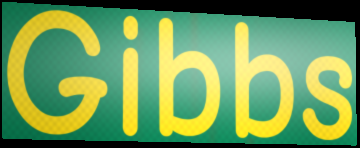
Gibbs